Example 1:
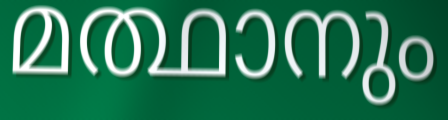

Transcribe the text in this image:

മത്ഥാനും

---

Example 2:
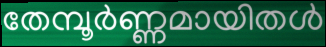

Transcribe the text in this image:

തേമ്പൂർണ്ണമായിതൾ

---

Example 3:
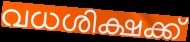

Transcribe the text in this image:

വധശിക്ഷക്ക്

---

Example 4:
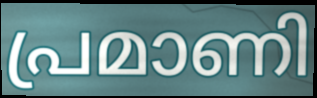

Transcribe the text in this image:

പ്രമാണി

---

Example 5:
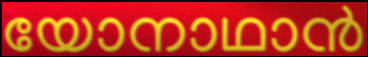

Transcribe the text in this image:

യോനാഥാൻ